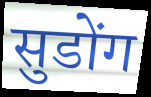
सुडोंग